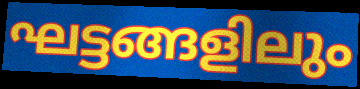
ഘട്ടങ്ങളിലും